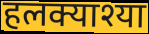
हलक्याश्या